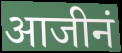
आजीनं